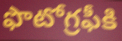
ఫొటోగ్రఫీకి